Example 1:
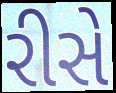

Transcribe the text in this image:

રીસે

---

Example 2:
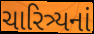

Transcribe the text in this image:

ચારિત્ર્યનાં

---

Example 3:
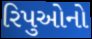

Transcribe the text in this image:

રિપુઓનો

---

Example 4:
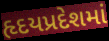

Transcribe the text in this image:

હૃદયપ્રદેશમાં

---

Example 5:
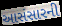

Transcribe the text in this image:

આસંસારની